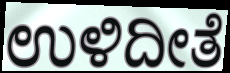
ಉಳಿದೀತೆ